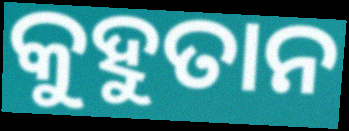
କୁହୁତାନ